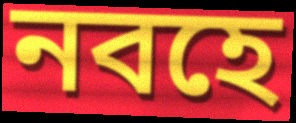
নবহে